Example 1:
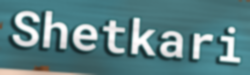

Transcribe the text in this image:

Shetkari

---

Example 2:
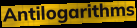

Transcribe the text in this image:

Antilogarithms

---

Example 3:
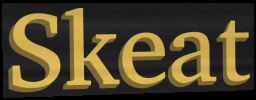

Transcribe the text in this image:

Skeat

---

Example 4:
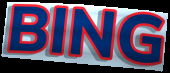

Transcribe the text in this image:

BING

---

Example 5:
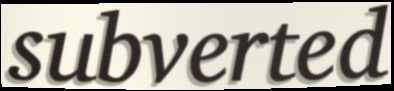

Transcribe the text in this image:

subverted